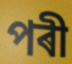
পৰী